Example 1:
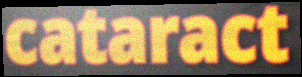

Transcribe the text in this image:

cataract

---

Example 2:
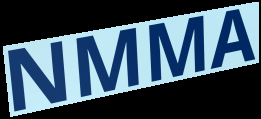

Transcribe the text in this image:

NMMA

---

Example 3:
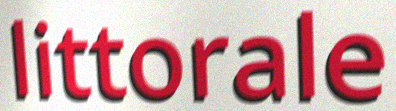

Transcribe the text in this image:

littorale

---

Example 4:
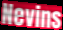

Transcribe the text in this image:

Nevins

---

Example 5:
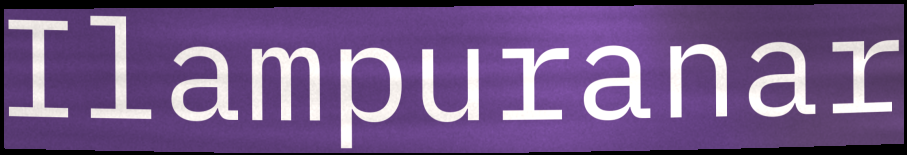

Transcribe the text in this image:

Ilampuranar